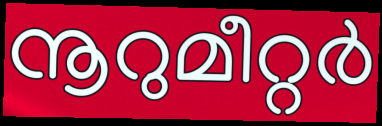
നൂറുമീറ്റർ